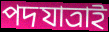
পদযাত্রাই